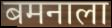
बमनाला